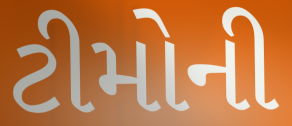
ટીમોની